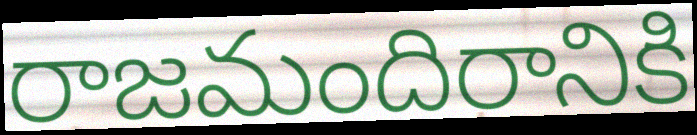
రాజమందిరానికి